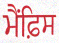
ਮੈਂਫ਼ਿਸ